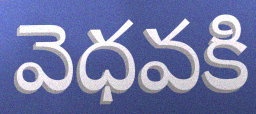
వెధవకి